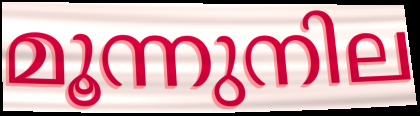
മൂന്നുനില